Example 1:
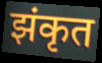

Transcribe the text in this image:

झंकृत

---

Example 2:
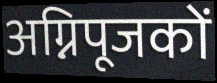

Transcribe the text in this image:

अग्निपूजकों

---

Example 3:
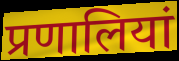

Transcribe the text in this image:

प्रणालियां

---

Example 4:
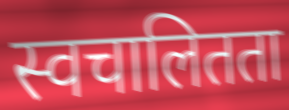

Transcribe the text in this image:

स्वचालितता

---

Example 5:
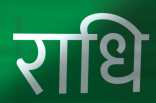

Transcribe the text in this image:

राधि